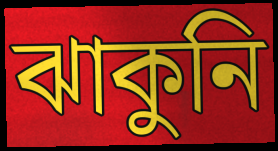
ঝাকুনি